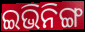
ଇଭିନିଙ୍ଗ